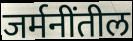
जर्मनींतील